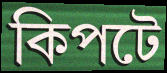
কিপটে